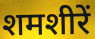
शमशीरें